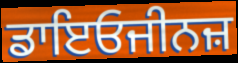
ਡਾਇਓਜੀਨਜ਼